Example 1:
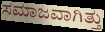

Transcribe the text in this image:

ಸಮಾಜವಾಗಿತ್ತು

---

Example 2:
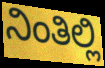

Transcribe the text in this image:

ನಿಂತಿಲ್ಲಿ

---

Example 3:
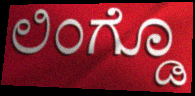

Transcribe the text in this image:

ಲಿಂಗ್ಡೊ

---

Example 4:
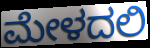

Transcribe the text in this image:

ಮೇಳದಲಿ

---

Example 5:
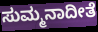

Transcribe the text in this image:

ಸುಮ್ಮನಾದೀತೆ